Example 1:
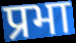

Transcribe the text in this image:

प्रभा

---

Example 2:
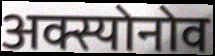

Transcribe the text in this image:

अक्स्योनोव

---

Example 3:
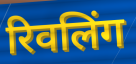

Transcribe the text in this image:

रिवलिंग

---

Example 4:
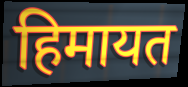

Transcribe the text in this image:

हिमायत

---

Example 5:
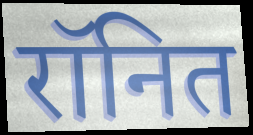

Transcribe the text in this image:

रॉनित